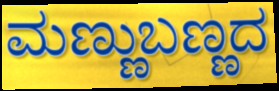
ಮಣ್ಣುಬಣ್ಣದ